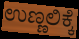
ಉಣ್ಣಲಿಕ್ಕೆ